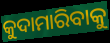
କୁଦାମାରିବାକୁ